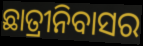
ଛାତ୍ରୀନିବାସର